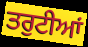
ਤਰੁਟੀਆਂ